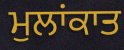
ਮੁਲਾਂਕਾਤ